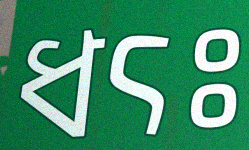
ধৎঃ